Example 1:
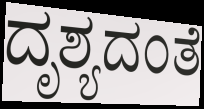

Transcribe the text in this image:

ದೃಶ್ಯದಂತೆ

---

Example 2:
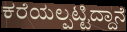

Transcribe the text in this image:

ಕರೆಯಲ್ಪಟ್ಟಿದ್ದಾನೆ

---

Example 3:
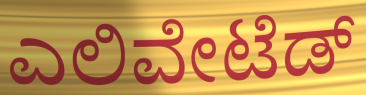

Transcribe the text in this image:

ಎಲಿವೇಟೆಡ್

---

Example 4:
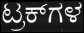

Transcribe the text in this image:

ಟ್ರಕ್‌ಗಳ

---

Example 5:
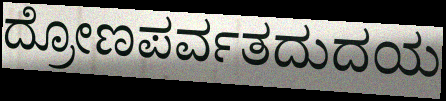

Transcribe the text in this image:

ದ್ರೋಣಪರ್ವತದುದಯ